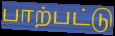
பாற்பட்டு